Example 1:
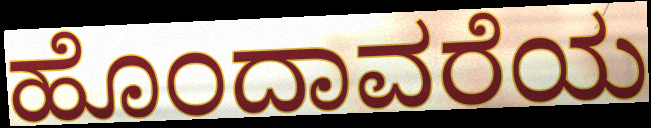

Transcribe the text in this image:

ಹೊಂದಾವರೆಯ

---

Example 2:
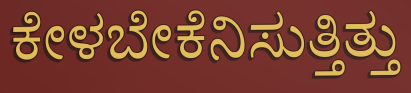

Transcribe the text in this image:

ಕೇಳಬೇಕೆನಿಸುತ್ತಿತ್ತು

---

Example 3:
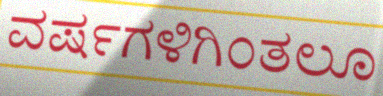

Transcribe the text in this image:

ವರ್ಷಗಳಿಗಿಂತಲೂ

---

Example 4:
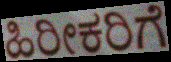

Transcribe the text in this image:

ಹಿರೀಕರಿಗೆ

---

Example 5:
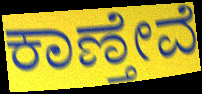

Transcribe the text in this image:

ಕಾಣ್ತೇವೆ